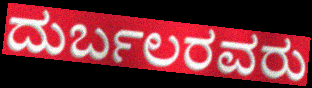
ದುರ್ಬಲರವರು